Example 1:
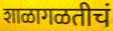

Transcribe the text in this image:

शाळागळतीचं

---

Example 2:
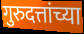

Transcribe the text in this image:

गुरुदत्तांच्या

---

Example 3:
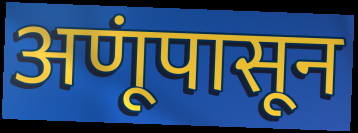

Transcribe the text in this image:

अणूंपासून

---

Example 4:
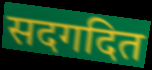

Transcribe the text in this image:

सदगदित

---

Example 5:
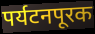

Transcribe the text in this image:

पर्यटनपूरक